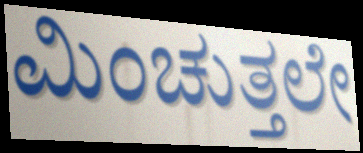
ಮಿಂಚುತ್ತಲೇ